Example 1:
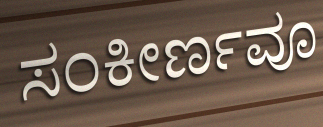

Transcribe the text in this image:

ಸಂಕೀರ್ಣವೂ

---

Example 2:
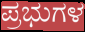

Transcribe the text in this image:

ಪ್ರಭುಗಳ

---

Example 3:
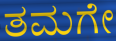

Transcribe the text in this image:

ತಮಗೇ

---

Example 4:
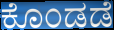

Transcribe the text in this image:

ಕೊಂಡಡೆ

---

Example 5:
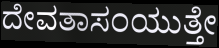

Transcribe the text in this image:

ದೇವತಾಸಂಯುತ್ತೇ